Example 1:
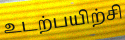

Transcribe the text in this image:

உடற்பயிற்சி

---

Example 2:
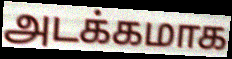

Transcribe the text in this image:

அடக்கமாக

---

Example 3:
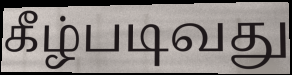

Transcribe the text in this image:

கீழ்படிவது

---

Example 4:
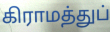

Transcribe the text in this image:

கிராமத்துப்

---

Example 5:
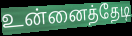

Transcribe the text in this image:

உன்னைத்தேடி